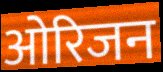
ओरिजन